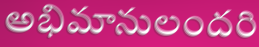
అభిమానులందరి